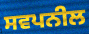
ਸਵਪਨੀਲ